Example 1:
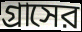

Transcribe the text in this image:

গ্রাসের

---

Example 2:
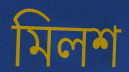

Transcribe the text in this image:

মিলশ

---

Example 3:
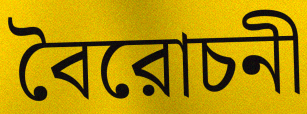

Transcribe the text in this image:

বৈরোচনী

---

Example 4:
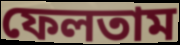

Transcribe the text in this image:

ফেলতাম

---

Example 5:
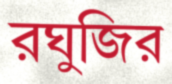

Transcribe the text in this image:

রঘুজির